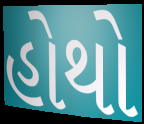
હોથો